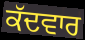
ਕੱਦਵਾਰ